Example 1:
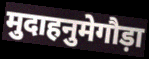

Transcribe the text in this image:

मुदाहनुमेगौड़ा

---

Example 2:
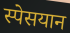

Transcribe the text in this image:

स्पेसयान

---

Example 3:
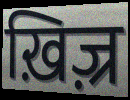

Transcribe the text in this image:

ख़िज़्र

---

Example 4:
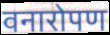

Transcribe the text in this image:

वनारोपण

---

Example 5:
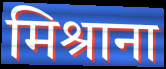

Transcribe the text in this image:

मिश्राना